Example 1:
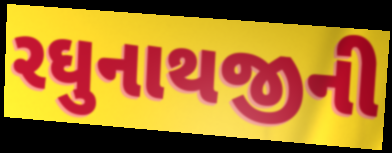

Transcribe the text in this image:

રઘુનાથજીની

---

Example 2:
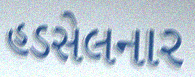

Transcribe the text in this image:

હડસેલનાર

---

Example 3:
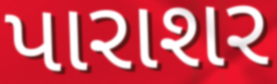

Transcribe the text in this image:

પારાશર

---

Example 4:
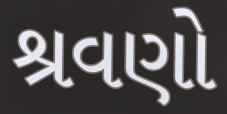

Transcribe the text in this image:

શ્રવણો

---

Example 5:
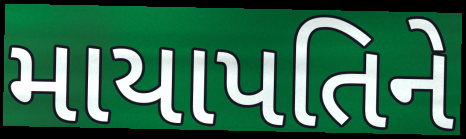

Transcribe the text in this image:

માયાપતિને